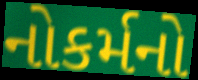
નોકર્મનો